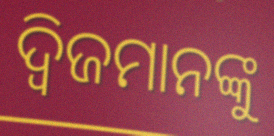
ଦ୍ୱିଜମାନଙ୍କୁ